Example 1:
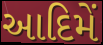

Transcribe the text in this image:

આદિમેં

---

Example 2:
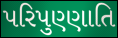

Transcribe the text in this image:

પરિપુણ્ણાતિ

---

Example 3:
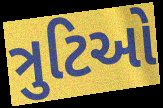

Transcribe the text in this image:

ત્રુટિઓ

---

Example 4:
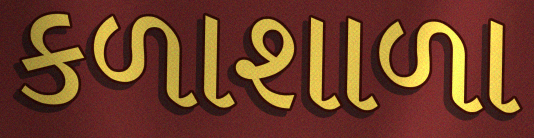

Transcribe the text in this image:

કળાશાળા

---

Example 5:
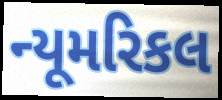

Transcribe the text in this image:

ન્યૂમરિકલ